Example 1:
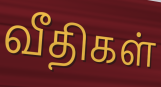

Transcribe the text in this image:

வீதிகள்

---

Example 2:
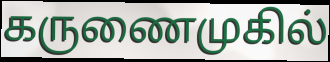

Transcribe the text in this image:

கருணைமுகில்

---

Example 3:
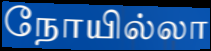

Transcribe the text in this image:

நோயில்லா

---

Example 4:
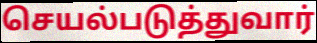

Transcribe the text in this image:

செயல்படுத்துவார்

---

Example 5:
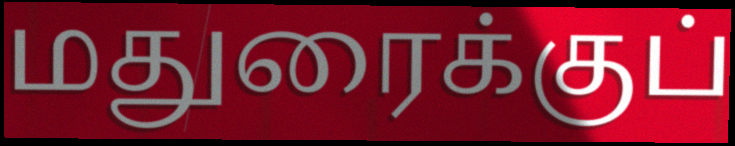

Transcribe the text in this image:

மதுரைக்குப்